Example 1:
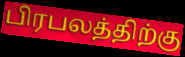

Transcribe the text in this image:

பிரபலத்திற்கு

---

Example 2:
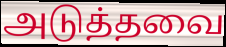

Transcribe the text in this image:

அடுத்தவை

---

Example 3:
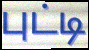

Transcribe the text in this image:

புட்டி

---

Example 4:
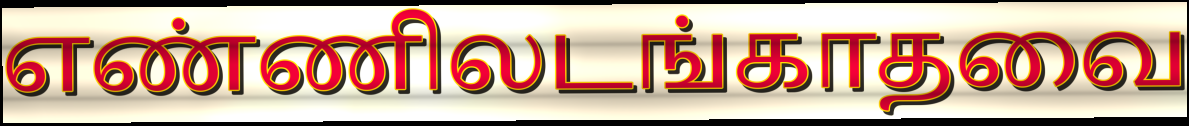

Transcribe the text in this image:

எண்ணிலடங்காதவை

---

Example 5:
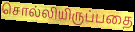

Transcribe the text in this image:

சொல்லியிருப்பதை